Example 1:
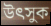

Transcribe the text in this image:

উৎসুক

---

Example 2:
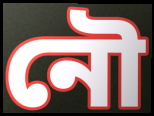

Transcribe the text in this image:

নৌ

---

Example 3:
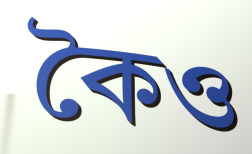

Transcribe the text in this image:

কৈও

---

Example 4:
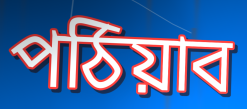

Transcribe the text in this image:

পঠিয়াব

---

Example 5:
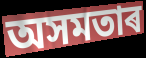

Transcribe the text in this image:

অসমতাৰ